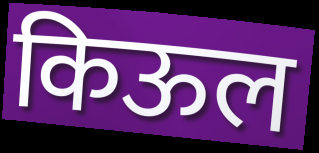
किऊल